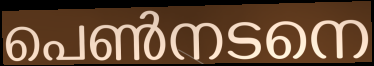
പെൺനടനെ